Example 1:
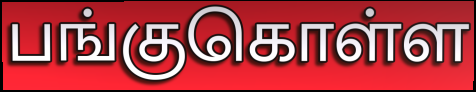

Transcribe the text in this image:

பங்குகொள்ள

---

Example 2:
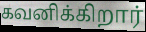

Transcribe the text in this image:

கவனிக்கிறார்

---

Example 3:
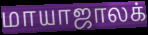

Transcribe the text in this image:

மாயாஜாலக்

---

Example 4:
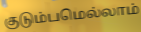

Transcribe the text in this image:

குடும்பமெல்லாம்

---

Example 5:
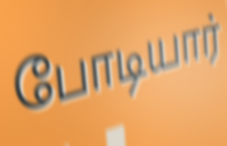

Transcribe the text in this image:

போடியார்